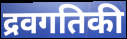
द्रवगतिकी